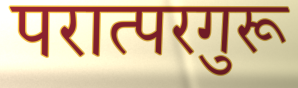
परात्परगुरू